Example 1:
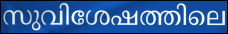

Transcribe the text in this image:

സുവിശേഷത്തിലെ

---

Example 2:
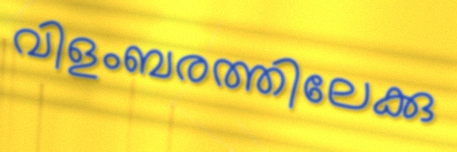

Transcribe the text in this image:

വിളംബരത്തിലേക്കു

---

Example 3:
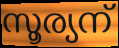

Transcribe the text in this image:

സൂര്യന്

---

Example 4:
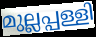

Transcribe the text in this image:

മുല്ലപ്പള്ളി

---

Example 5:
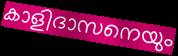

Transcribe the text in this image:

കാളിദാസനെയും